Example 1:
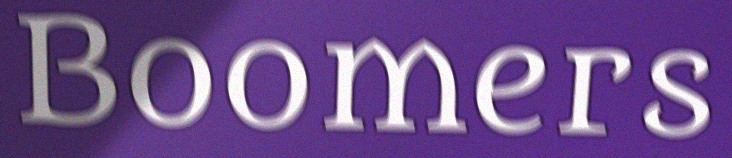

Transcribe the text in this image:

Boomers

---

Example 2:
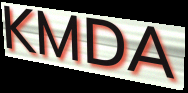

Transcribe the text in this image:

KMDA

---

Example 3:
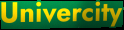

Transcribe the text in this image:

Univercity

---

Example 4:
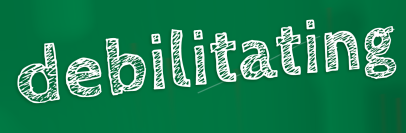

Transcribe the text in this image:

debilitating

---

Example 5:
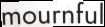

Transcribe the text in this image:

mournful